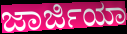
ಜಾರ್ಜಿಯಾ